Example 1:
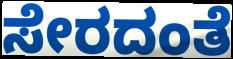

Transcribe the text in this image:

ಸೇರದಂತೆ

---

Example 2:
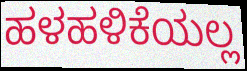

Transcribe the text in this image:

ಹಳಹಳಿಕೆಯಲ್ಲ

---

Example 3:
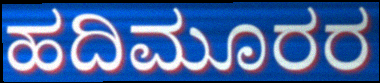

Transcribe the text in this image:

ಹದಿಮೂರರ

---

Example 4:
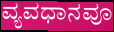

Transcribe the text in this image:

ವ್ಯವಧಾನವೂ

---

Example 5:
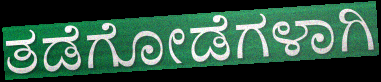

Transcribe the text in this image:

ತಡೆಗೋಡೆಗಳಾಗಿ